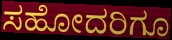
ಸಹೋದರಿಗೂ